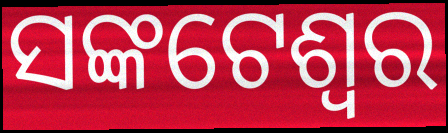
ସଙ୍କଟେଶ୍ୱର